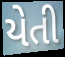
યેતી